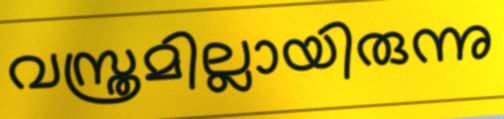
വസ്ത്രമില്ലായിരുന്നു